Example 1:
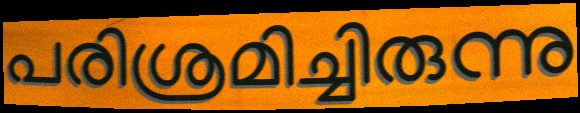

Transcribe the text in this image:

പരിശ്രമിച്ചിരുന്നു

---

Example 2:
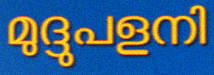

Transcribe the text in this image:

മുദ്ദുപളനി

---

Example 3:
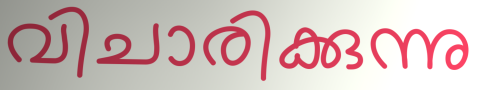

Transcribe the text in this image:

വിചാരിക്കുന്നു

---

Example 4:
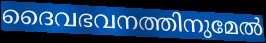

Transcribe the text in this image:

ദൈവഭവനത്തിനുമേൽ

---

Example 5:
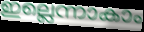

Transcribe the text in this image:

ഇല്ലെന്നാകാം